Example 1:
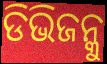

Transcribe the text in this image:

ଡିଭିଜନ୍କୁ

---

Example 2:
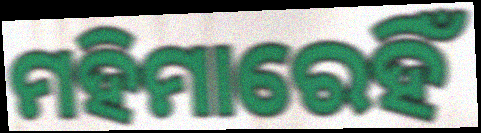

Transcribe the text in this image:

ମହିମାରେହିଁ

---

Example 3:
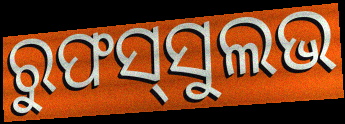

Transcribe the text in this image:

ରୁଫସ୍‌ସୁଲଭ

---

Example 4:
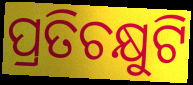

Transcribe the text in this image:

ପ୍ରତିଚକ୍ଷୁଟି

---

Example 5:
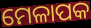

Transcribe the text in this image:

ମେଳାପକ